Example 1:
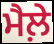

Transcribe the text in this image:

ਮੈਲ਼ੇ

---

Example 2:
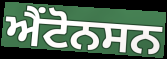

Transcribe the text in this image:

ਐਂਟੋਨਸਨ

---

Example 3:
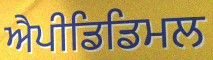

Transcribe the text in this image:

ਐਪੀਡਿਡਿਮਲ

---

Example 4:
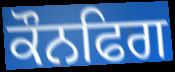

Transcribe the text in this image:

ਕੌਨਫਿਗ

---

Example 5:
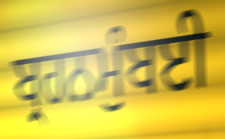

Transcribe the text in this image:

ਬ੍ਰਹਨਮੁੰਬਈ